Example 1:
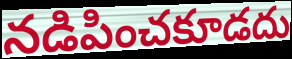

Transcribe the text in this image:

నడిపించకూడదు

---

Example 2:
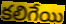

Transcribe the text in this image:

కలిగేయి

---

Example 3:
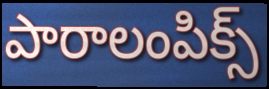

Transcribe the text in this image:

పారాలంపిక్స్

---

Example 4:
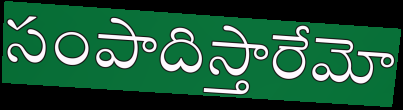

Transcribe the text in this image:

సంపాదిస్తారేమో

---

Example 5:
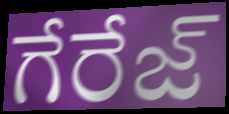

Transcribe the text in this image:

గేరేజ్